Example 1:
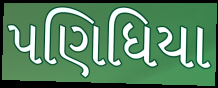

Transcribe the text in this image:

પણિધિયા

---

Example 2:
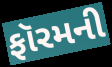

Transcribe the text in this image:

ફૉરમની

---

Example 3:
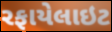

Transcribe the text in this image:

રફાયેલાઇટ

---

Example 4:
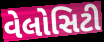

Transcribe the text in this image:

વેલોસિટી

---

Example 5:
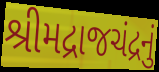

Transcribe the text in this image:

શ્રીમદ્રાજચંદ્રનું